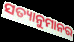
ସତ୍ୟାନୁମାନର